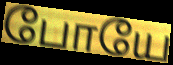
போயே